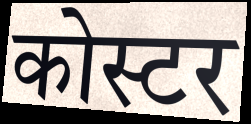
कोस्टर